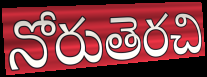
నోరుతెరచి